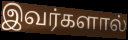
இவர்களால்